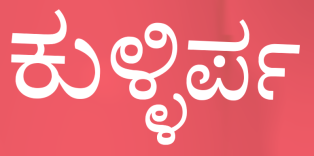
ಕುಳ್ಳಿರ್ಪ